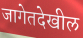
जागेतदेखील